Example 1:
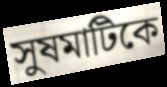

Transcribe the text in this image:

সুষমাটিকে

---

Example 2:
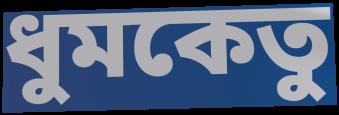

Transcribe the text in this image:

ধুমকেতু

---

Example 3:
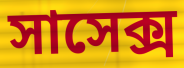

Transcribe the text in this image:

সাসেক্স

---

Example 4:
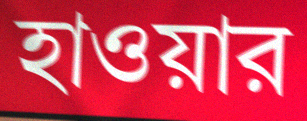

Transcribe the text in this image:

হাওয়ার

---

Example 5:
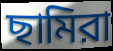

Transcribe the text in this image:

ছামিরা